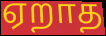
ஏறாத